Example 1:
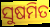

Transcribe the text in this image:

ସୁଷମିତ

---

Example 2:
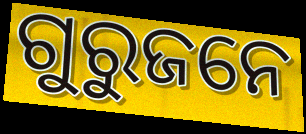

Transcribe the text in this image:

ଗୁରୁଜନେ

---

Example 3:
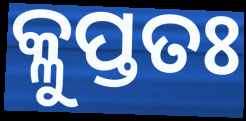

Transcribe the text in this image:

କ୍ଳୁପ୍ତତଃ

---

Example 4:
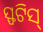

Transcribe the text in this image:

ସ୍ଫଟିସ୍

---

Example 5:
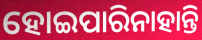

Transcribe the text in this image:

ହୋଇପାରିନାହାନ୍ତି